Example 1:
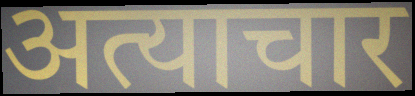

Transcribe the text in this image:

अत्‍याचार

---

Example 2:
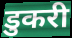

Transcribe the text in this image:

डुकरी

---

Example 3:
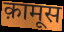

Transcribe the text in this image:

क़ामूस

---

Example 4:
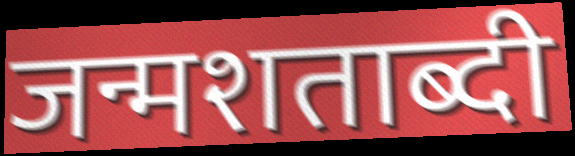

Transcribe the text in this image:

जन्मशताब्दी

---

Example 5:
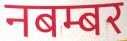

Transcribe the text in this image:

नबम्बर